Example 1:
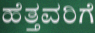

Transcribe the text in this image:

ಹೆತ್ತವರಿಗೆ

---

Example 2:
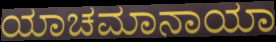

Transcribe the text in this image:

ಯಾಚಮಾನಾಯಾ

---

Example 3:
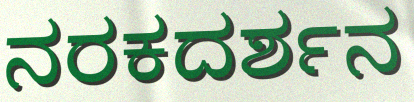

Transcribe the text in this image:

ನರಕದರ್ಶನ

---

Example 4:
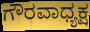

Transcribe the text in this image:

ಗೌರವಾಧ್ಯಕ್ಷ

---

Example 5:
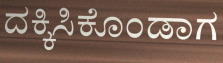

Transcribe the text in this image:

ದಕ್ಕಿಸಿಕೊಂಡಾಗ